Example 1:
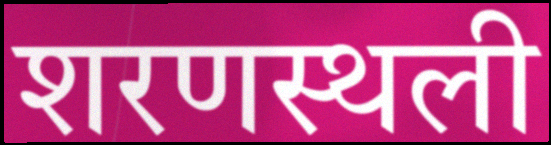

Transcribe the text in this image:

शरणस्थली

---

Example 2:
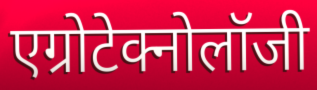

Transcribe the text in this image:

एग्रोटेक्नोलॉजी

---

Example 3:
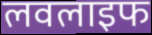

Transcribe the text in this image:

लवलाइफ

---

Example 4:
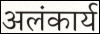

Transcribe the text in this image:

अलंकार्य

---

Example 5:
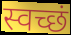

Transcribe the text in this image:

स्वच्छं